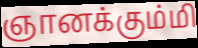
ஞானக்கும்மி